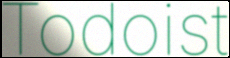
Todoist